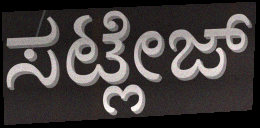
ಸಟ್ಲೇಜ್